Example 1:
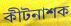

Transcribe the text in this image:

কীটনাশক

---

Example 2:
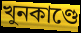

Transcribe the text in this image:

খুনকাণ্ডে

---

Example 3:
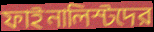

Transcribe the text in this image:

ফাইনালিস্টদের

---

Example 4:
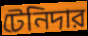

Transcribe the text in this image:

টেনিদার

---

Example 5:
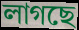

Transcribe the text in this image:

লাগছে